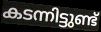
കടന്നിട്ടുണ്ട്